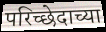
परिच्छेदाच्या